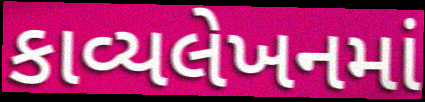
કાવ્યલેખનમાં